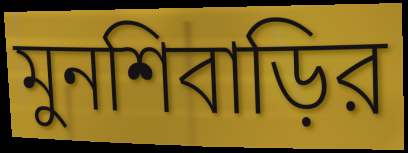
মুনশিবাড়ির